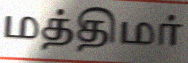
மத்திமர்